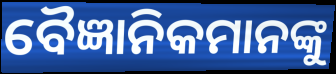
ବୈଜ୍ଞାନିକମାନଙ୍କୁ